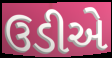
ઉડીએ